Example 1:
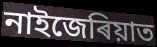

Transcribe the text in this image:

নাইজেৰিয়াত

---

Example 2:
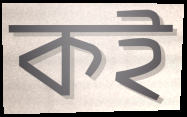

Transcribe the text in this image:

কই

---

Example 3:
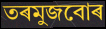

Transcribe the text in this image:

তৰমুজবোৰ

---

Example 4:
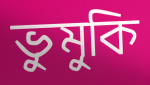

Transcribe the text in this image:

ভুমুকি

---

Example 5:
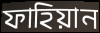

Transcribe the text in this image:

ফাহিয়ান